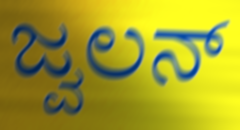
ಜ್ವಲನ್